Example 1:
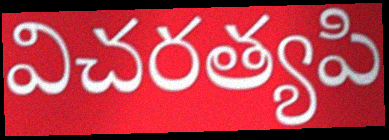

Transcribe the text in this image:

విచరత్యపి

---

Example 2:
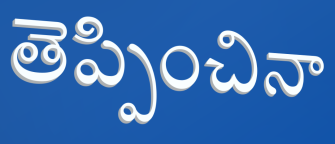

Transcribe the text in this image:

తెప్పించినా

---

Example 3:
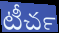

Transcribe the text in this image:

టీచర్‍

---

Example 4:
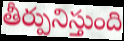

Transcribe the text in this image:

తీర్పునిస్తుంది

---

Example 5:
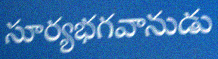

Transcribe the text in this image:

సూర్యభగవానుడు